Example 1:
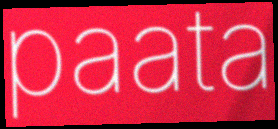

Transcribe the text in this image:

paata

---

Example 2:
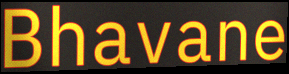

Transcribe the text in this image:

Bhavane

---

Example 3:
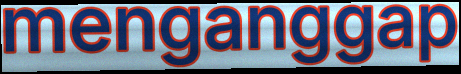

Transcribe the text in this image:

menganggap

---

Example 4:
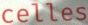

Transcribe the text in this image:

celles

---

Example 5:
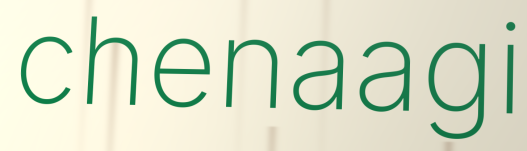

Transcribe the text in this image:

chenaagi